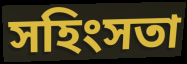
সহিংসতা